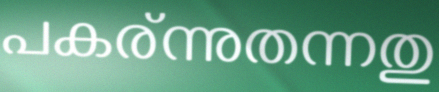
പകര്ന്നുതന്നതു